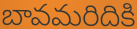
బావమరిదికి